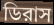
ডিরাস